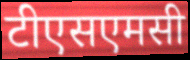
टीएसएमसी